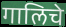
गालिचे